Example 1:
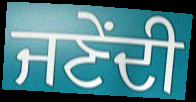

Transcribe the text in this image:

ਜਣੇਂਦੀ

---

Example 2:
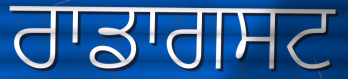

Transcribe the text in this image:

ਰਾਡਾਗਸਟ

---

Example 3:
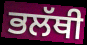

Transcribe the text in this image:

ਭਲੱਥੀ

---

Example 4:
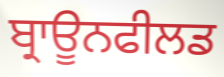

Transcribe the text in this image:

ਬ੍ਰਾਊਨਫੀਲਡ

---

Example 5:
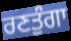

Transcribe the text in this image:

ਰਣਤੁੰਗਾ